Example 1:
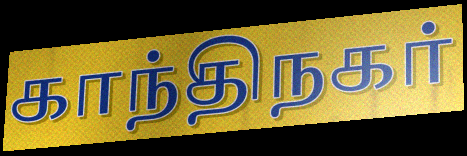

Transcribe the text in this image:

காந்திநகர்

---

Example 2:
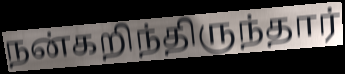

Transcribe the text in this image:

நன்கறிந்திருந்தார்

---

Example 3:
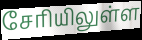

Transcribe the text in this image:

சேரியிலுள்ள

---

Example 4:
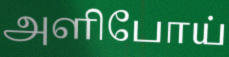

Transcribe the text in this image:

அளிபோய்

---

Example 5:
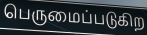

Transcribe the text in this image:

பெருமைப்படுகிற